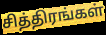
சித்திரங்கள்